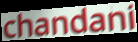
chandani